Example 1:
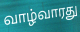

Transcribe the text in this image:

வாழ்வாரது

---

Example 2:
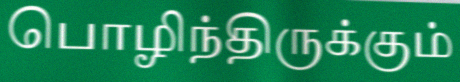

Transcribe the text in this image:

பொழிந்திருக்கும்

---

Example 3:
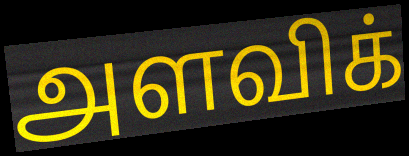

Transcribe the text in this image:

அளவிக்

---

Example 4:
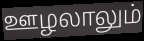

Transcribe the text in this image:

ஊழலாலும்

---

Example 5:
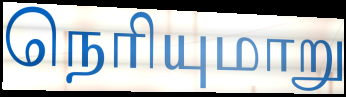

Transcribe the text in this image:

நெரியுமாறு